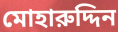
মোহারুদ্দিন